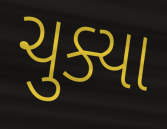
ચુક્યા